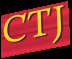
CTJ